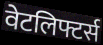
वेटलिफ्टर्स